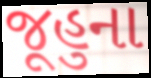
જૂહુના